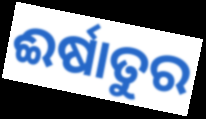
ଈର୍ଷାତୁର